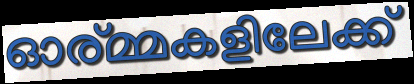
ഓര്മ്മകളിലേക്ക്